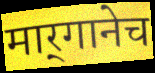
मार्गानेच